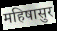
महिषासुर